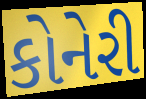
કોનેરી